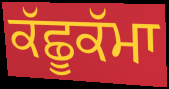
ਕੱਛੂਕੱਮਾ